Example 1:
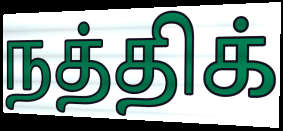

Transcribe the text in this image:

நத்திக்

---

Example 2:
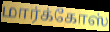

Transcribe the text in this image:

மார்க்கோஸ்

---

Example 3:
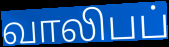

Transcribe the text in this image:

வாலிபப்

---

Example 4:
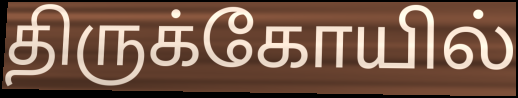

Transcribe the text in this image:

திருக்கோயில்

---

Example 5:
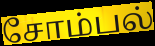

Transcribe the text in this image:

சோம்பல்